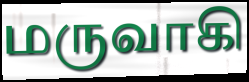
மருவாகி